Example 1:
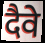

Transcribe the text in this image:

दैवे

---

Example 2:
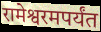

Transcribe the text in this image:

रामेश्वरमपर्यंत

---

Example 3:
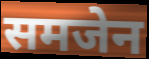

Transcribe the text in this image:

समजेन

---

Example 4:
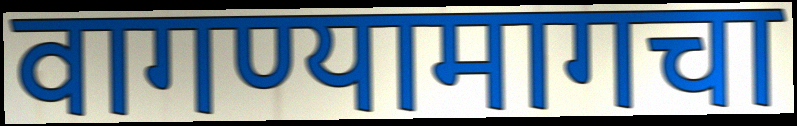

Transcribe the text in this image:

वागण्यामागचा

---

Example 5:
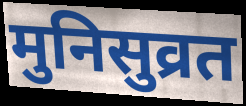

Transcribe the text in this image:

मुनिसुव्रत